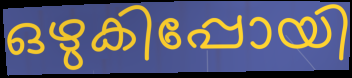
ഒഴുകിപ്പോയി